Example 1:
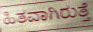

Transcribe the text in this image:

ಹಿತವಾಗಿರುತ್ತೆ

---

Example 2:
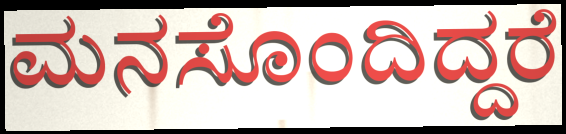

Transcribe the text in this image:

ಮನಸೊಂದಿದ್ದರೆ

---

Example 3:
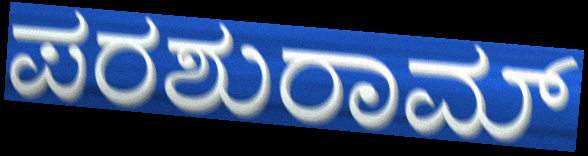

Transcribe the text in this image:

ಪರಶುರಾಮ್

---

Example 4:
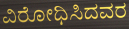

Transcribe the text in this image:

ವಿರೋಧಿಸಿದವರ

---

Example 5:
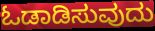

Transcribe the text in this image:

ಓಡಾಡಿಸುವುದು